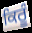
ਕਿਰੂੰ